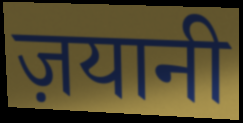
ज़यानी